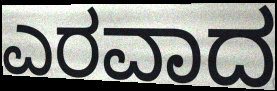
ಎರವಾದ